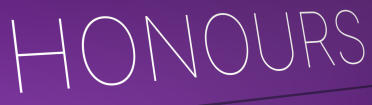
HONOURS